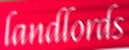
landlords